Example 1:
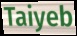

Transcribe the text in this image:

Taiyeb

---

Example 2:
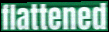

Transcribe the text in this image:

flattened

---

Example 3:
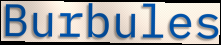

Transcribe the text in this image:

Burbules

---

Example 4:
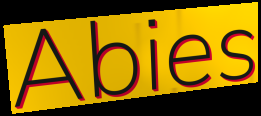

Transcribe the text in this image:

Abies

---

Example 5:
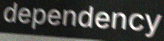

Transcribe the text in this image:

dependency